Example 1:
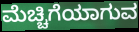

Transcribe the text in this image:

ಮೆಚ್ಚಿಗೆಯಾಗುವ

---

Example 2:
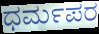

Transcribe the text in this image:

ಧರ್ಮಪರ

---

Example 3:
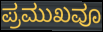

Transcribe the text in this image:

ಪ್ರಮುಖವೂ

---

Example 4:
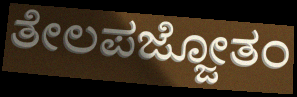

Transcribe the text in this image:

ತೇಲಪಜ್ಜೋತಂ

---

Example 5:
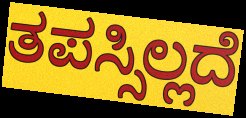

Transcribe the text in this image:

ತಪಸ್ಸಿಲ್ಲದೆ